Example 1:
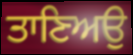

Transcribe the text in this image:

ਤਾਣਿਅਉ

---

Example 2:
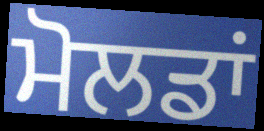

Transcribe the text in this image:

ਮੋਲਡਾਂ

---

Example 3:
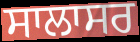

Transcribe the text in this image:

ਸਾਲਾਸਰ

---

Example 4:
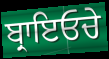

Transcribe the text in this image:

ਬ੍ਰਾਇਓਚੇ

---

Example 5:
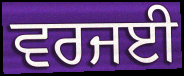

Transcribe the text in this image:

ਵਰਜਈ